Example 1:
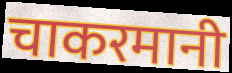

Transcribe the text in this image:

चाकरमानी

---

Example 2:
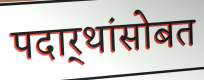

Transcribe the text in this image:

पदार्थांसोबत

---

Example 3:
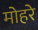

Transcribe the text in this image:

मोहरे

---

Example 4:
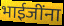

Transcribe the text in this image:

भाईजींना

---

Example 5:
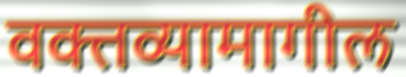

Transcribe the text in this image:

वक्तव्यामागील